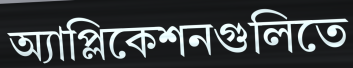
অ্যাপ্লিকেশনগুলিতে